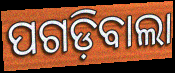
ପଗଡ଼ିବାଲା